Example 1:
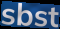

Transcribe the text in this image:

sbst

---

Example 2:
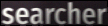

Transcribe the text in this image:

searcher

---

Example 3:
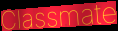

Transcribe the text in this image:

Classmate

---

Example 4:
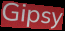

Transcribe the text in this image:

Gipsy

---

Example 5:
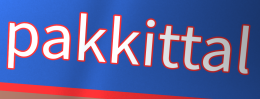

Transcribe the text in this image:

pakkittal